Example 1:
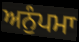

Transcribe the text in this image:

ਅਨੁੰਪਮਾ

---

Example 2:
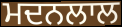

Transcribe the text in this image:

ਮਦਨਲਾਲ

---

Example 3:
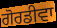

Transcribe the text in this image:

ਗੋਰਡੀਵਾ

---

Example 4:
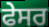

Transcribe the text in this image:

ਫੇਸਰ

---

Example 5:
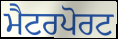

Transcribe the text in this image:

ਮੈਟਰਪੋਰਟ